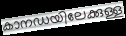
കാനഡയിലേക്കുള്ള